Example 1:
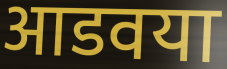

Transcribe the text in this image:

आडवया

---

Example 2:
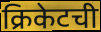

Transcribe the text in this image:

क्रिकेटची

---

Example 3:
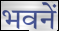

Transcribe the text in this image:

भवनें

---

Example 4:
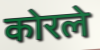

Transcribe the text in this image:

कोरले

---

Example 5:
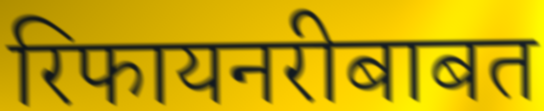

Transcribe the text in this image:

रिफायनरीबाबत